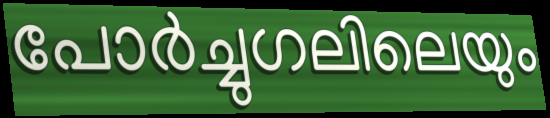
പോർച്ചുഗലിലെയും